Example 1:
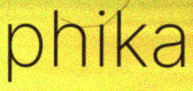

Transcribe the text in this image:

phika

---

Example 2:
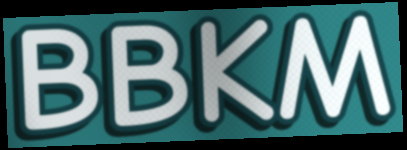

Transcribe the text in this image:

BBKM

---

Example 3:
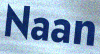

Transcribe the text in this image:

Naan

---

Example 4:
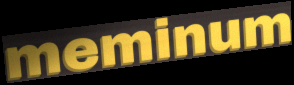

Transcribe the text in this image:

meminum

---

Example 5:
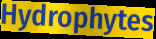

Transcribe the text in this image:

Hydrophytes